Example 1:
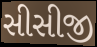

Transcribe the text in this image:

સીસીજી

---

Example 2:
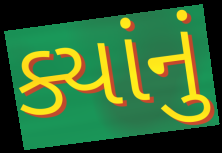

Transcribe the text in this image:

ક્યાંનું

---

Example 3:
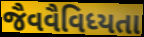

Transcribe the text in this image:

જૈવવૈવિધ્યતા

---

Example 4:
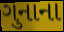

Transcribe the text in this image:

ગુનાના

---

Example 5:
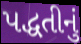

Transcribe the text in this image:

પદ્ધતીનું